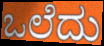
ಒಲೆದು